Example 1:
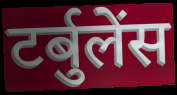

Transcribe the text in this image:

टर्बुलेंस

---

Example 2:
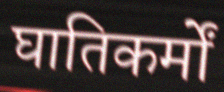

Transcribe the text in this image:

घातिकर्मों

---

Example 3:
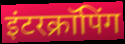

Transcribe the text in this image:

इंटरक्रॉपिंग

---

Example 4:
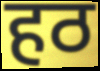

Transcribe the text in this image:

हठ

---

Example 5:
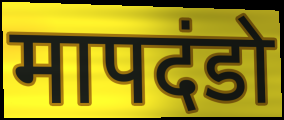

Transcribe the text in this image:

मापदंडो